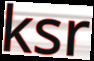
ksr